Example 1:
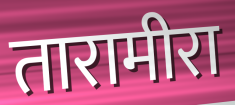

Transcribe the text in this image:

तारामीरा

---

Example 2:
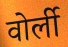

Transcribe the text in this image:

वोर्ली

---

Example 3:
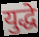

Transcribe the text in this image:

युद्धे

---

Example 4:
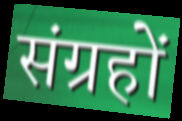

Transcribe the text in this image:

संग्रहों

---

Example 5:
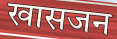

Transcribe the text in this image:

खासजन